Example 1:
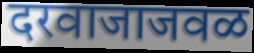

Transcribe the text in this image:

दरवाजाजवळ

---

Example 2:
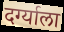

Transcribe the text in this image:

दर्ग्याला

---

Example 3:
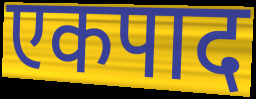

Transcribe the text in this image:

एकपाद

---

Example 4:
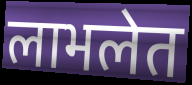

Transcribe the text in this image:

लाभलेत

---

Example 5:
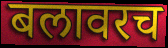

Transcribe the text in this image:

बलावरच